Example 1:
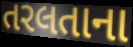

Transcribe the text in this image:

તરલતાના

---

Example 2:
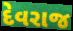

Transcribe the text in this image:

દેવરાજ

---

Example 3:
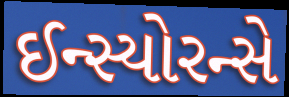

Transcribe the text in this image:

ઈન્સ્યોરન્સે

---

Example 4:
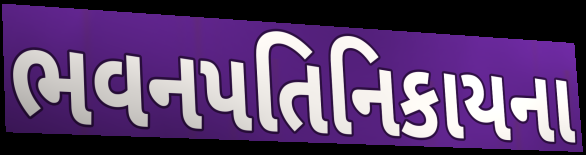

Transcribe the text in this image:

ભવનપતિનિકાયના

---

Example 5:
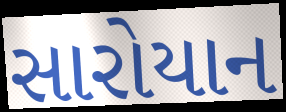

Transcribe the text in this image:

સારોયાન